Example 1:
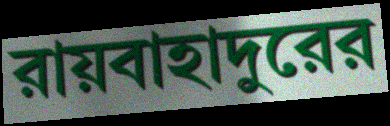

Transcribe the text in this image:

রায়বাহাদুরের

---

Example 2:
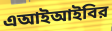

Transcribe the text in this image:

এআইআইবির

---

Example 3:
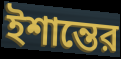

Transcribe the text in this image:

ইশান্তের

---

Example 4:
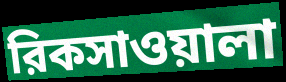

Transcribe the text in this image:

রিকসাওয়ালা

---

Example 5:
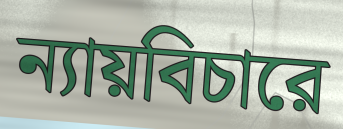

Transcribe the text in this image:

ন্যায়বিচারে